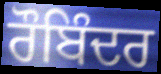
ਰੌਬਿੰਦਰ